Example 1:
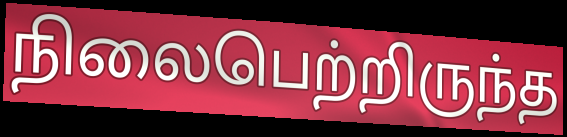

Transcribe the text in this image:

நிலைபெற்றிருந்த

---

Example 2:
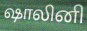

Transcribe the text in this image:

ஷாலினி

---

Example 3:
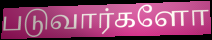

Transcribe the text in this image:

படுவார்களோ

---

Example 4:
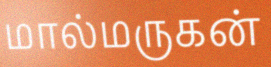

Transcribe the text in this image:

மால்மருகன்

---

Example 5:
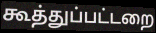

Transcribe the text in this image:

கூத்துப்பட்டறை